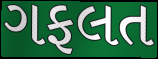
ગફલત